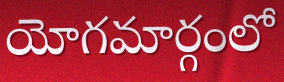
యోగమార్గంలో